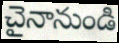
చైనానుండి